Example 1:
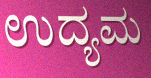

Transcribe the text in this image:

ಉದ್ಯಮ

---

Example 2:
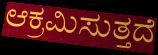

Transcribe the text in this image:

ಆಕ್ರಮಿಸುತ್ತದೆ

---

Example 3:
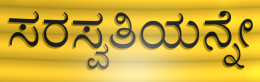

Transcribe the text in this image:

ಸರಸ್ವತಿಯನ್ನೇ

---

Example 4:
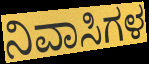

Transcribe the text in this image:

ನಿವಾಸಿಗಳ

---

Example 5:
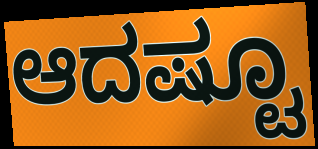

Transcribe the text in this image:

ಆದಷ್ಟೂ